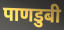
पाणडुबी